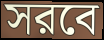
সরবে